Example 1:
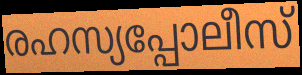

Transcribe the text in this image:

രഹസ്യപ്പോലീസ്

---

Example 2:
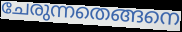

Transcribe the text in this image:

ചേരുന്നതെങ്ങനെ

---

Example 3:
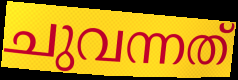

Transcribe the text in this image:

ചുവന്നത്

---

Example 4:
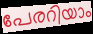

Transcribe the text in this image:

പേരറിയാം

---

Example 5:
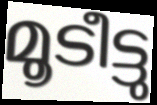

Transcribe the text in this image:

മൂടീട്ടു